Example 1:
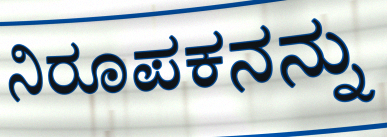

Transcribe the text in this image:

ನಿರೂಪಕನನ್ನು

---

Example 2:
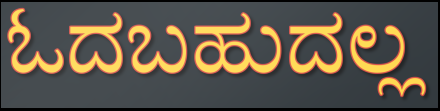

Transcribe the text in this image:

ಓದಬಹುದಲ್ಲ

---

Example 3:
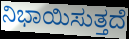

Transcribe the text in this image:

ನಿಭಾಯಿಸುತ್ತದೆ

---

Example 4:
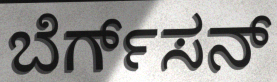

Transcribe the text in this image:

ಬೆರ್ಗ್‌ಸನ್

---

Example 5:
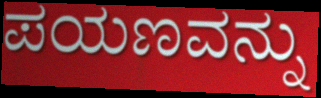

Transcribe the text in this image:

ಪಯಣವನ್ನು